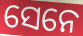
ସେନେ